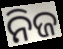
ନିଜ